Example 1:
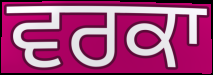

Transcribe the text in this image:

ਵਰਕਾ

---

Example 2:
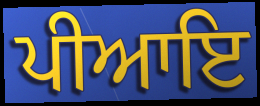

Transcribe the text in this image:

ਪੀਆਇ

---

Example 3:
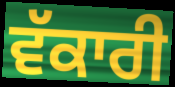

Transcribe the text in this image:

ਵੱਕਾਰੀ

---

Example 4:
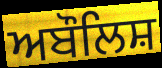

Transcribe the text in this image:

ਅਬੌਲਿਸ਼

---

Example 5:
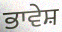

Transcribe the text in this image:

ਭਾਵੇਸ਼